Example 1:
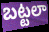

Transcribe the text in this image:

బట్టలా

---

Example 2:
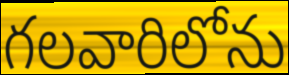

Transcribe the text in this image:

గలవారిలోను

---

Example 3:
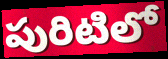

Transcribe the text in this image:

పురిటిలో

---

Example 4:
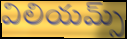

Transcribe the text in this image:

విలియమ్స్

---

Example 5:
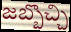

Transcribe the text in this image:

జబ్బొచ్చి